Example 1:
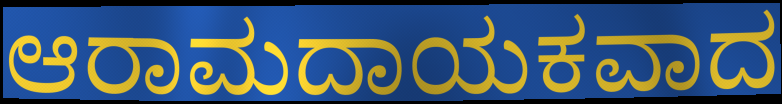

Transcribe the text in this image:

ಆರಾಮದಾಯಕವಾದ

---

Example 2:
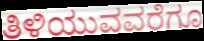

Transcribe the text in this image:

ತಿಳಿಯುವವರೆಗೂ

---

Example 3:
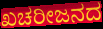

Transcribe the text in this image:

ಖಚರೀಜನದ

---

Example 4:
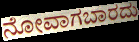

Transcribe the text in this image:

ನೋವಾಗಬಾರದು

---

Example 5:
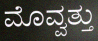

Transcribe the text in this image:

ಮೊವ್ವತ್ತು